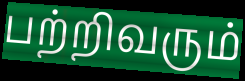
பற்றிவரும்